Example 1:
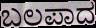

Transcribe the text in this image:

ಬಲಪಾದ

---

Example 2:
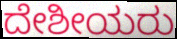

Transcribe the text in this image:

ದೇಶೀಯರು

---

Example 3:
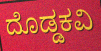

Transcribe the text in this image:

ದೊಡ್ಡಕವಿ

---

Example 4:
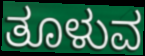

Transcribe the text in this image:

ತೂಳುವ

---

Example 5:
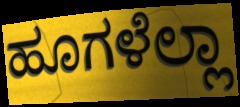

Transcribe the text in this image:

ಹೂಗಳೆಲ್ಲಾ